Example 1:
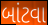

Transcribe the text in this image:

બાંટવા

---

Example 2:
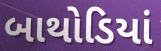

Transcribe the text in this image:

બાથોડિયાં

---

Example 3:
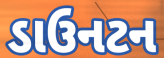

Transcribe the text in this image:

ડાઉનટન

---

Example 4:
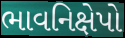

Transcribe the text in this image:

ભાવનિક્ષેપો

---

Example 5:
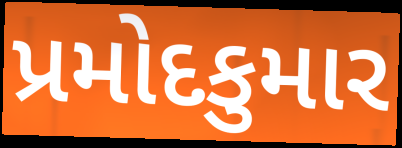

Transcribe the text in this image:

પ્રમોદકુમાર